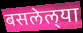
बसलेल्या